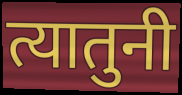
त्यातुनी